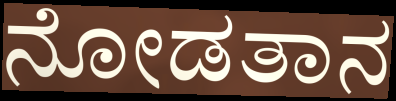
ನೋಡತಾನ